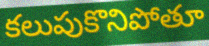
కలుపుకొనిపోతూ